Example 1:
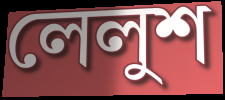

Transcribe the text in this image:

লেলুশ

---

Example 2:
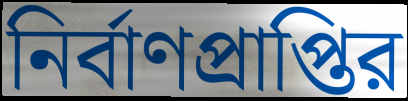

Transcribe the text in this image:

নির্বাণপ্রাপ্তির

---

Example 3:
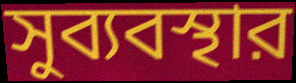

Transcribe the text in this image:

সুব্যবস্থার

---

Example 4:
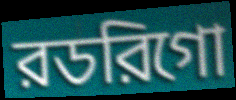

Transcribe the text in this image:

রডরিগো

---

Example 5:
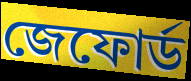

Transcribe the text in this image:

জেফোর্ড